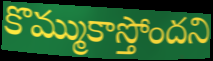
కొమ్ముకాస్తోందని